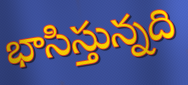
భాసిస్తున్నది